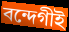
বন্দেগীই